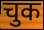
चुक